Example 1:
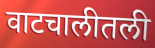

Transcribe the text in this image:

वाटचालीतली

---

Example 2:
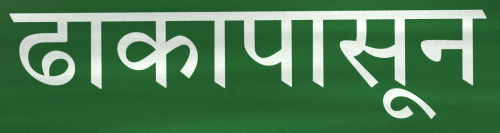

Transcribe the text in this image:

ढाकापासून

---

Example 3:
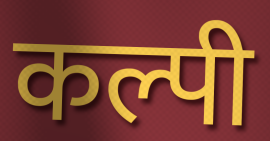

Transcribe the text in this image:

कल्पी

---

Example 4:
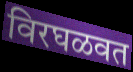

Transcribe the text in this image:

विरघळवत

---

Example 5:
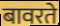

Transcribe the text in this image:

बावरते